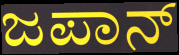
ಜಪಾನ್